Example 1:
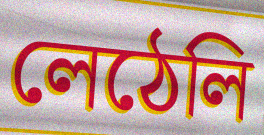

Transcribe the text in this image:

লেঠেলি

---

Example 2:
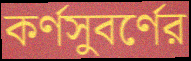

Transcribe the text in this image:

কর্ণসুবর্ণের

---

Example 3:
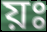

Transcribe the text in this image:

য়ঃ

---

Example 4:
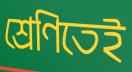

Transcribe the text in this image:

শ্রেণিতেই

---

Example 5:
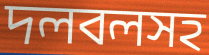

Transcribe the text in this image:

দলবলসহ